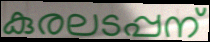
കുരലടപ്പന്